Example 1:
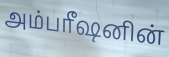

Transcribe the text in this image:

அம்பரீஷனின்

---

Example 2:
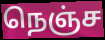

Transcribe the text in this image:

நெஞ்ச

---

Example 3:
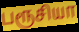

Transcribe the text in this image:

பரூசியா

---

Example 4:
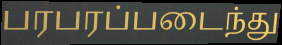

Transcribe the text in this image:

பரபரப்படைந்து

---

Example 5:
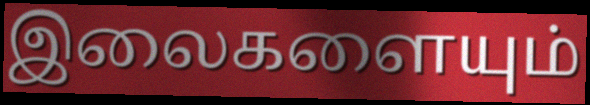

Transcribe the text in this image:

இலைகளையும்